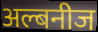
अल्बनीज